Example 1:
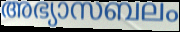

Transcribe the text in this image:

അഭ്യാസബലം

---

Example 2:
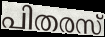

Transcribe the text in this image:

പിതരസ്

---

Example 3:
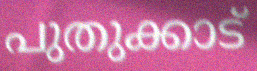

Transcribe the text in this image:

പുതുക്കാട്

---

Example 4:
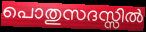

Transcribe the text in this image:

പൊതുസദസ്സിൽ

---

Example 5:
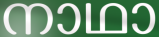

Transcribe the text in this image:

നാഥാ